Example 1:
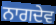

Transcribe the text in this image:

ਨਾਗਦੇਵ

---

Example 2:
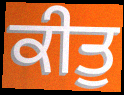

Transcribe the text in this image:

ਕੀਤੁ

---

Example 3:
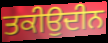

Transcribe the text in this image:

ਤਕੀਉਦੀਨ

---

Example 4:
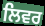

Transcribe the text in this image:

ਲਿਵਰ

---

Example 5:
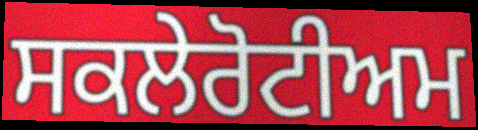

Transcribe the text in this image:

ਸਕਲੇਰੋਟੀਅਮ